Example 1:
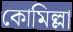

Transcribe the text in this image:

কোমিল্লা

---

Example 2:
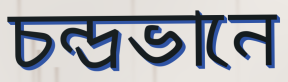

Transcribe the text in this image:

চন্দ্ৰভানে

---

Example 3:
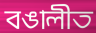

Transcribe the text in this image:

বঙালীত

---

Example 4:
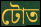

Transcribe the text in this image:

টোত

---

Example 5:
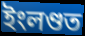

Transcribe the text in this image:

ইংলণ্ডত